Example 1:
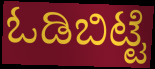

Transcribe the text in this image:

ಓಡಿಬಿಟ್ಟೆ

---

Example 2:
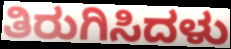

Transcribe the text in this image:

ತಿರುಗಿಸಿದಳು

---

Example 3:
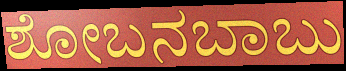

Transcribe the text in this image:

ಶೋಬನಬಾಬು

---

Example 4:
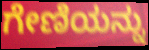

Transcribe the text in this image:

ಗೇಣಿಯನ್ನು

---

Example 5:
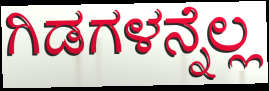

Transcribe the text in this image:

ಗಿಡಗಳನ್ನೆಲ್ಲ